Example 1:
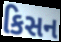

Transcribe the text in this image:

કિસન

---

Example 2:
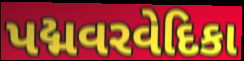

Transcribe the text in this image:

પદ્મવરવેદિકા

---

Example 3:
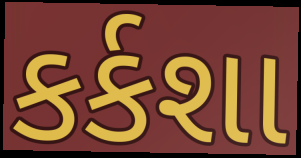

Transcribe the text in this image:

કર્કશા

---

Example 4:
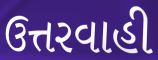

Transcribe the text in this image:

ઉત્તરવાહી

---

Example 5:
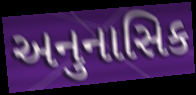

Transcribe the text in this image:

અનુનાસિક